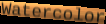
Watercolor